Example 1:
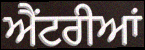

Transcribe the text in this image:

ਐਂਟਰੀਆਂ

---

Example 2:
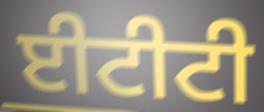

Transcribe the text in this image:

ਈਟੀਟੀ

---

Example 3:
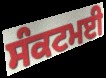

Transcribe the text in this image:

ਸੰਕਟਮਈ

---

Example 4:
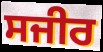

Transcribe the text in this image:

ਸਜੀਰ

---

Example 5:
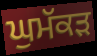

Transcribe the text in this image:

ਘੁਮੱਕੜ